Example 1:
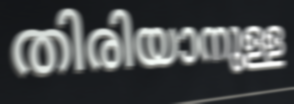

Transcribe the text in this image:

തിരിയാനുള്ള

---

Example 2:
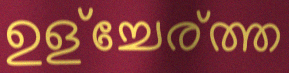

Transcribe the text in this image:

ഉള്ച്ചേര്ത്ത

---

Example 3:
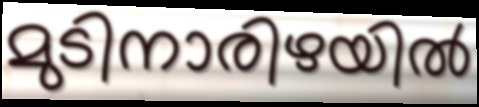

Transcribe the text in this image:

മുടിനാരിഴയിൽ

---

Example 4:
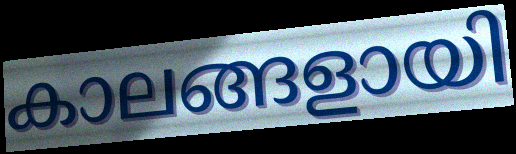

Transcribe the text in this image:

കാലങ്ങളായി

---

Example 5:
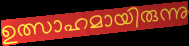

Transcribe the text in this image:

ഉത്സാഹമായിരുന്നു